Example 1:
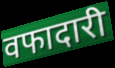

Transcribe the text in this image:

वफादारी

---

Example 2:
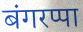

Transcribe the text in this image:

बंगरप्पा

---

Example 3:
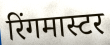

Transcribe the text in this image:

रिंगमास्टर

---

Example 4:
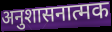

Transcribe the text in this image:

अनुशासनात्मक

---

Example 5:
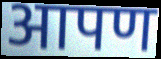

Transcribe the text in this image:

आपण